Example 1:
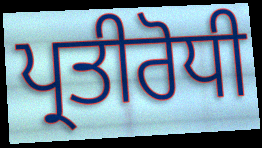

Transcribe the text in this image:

ਪ੍ਰਤੀਰੋਧੀ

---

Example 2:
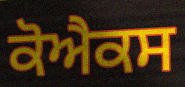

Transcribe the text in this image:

ਕੋਐਕਸ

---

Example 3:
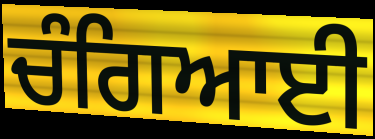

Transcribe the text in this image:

ਚੰਗਿਆਈ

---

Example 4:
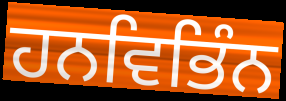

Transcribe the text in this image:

ਹਨਵਿਭਿੰਨ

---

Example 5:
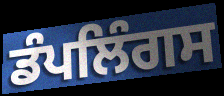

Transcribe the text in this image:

ਡੰਪਲਿੰਗਸ